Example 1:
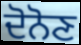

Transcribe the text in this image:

ਦੋਨੋਣ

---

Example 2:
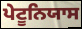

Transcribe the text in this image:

ਪੇਟੂਨਿਯਾਸ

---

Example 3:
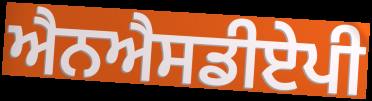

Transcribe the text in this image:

ਐਨਐਸਡੀਏਪੀ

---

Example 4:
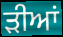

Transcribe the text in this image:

ੜੀਆਂ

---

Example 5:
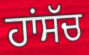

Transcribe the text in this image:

ਹਾਂਸੱਚ